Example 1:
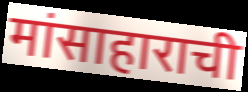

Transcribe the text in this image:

मांसाहाराची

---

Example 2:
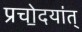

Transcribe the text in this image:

प्रचो॒दया॑त्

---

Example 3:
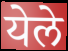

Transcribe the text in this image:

येले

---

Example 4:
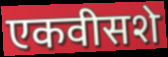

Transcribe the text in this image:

एकवीसशे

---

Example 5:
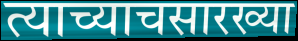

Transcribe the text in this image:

त्याच्याचसारख्या